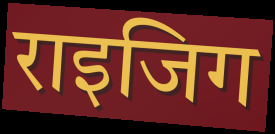
राइजिग